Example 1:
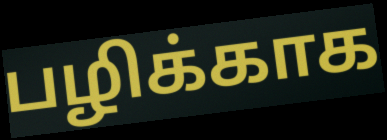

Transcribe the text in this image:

பழிக்காக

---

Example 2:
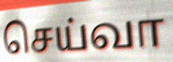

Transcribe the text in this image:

செய்வா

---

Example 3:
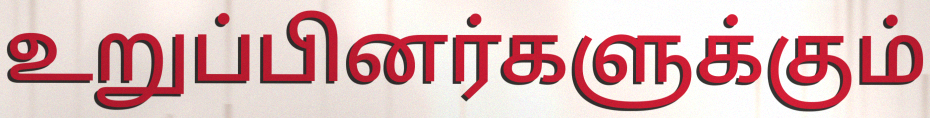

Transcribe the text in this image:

உறுப்பினர்களுக்கும்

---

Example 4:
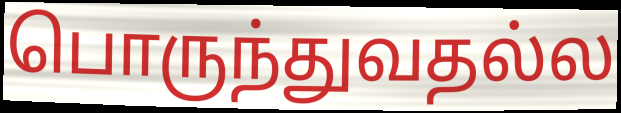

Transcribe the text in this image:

பொருந்துவதல்ல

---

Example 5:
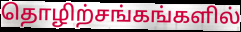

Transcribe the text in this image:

தொழிற்சங்கங்களில்